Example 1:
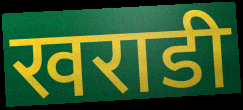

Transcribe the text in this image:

खराडी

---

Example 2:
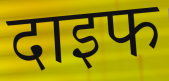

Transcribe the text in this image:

दाइफ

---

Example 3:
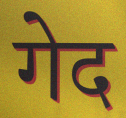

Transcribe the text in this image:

गेद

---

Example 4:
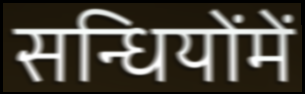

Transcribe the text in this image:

सन्धियोंमें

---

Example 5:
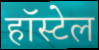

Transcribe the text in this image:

हॉस्टेल